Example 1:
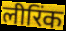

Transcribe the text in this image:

लीरिंक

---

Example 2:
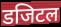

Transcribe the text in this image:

डजिटल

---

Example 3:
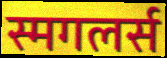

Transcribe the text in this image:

स्‍मगलर्स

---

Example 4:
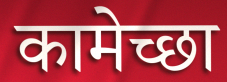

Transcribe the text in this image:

कामेच्छा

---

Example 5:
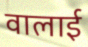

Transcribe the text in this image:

वालाई